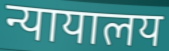
न्यायालय